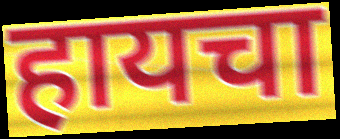
हायचा